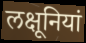
लक्षूनियां